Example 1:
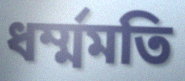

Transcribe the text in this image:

ধর্ম্মমতি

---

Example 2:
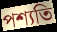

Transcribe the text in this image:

পশ্যতি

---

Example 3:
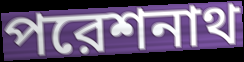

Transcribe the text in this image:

পরেশনাথ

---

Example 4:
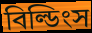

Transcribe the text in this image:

বিল্ডিংস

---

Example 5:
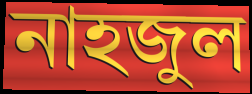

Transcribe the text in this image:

নাহজুল